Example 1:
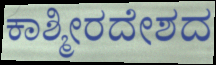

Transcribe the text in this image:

ಕಾಶ್ಮೀರದೇಶದ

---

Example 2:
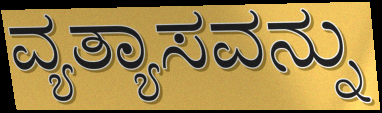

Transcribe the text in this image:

ವ್ಯತ್ಯಾಸವನ್ನು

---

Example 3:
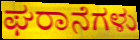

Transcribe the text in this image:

ಘರಾನೆಗಳು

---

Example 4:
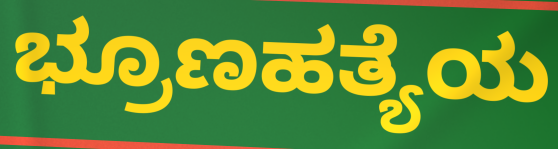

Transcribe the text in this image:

ಭ್ರೂಣಹತ್ಯೆಯ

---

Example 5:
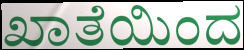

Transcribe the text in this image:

ಖಾತೆಯಿಂದ